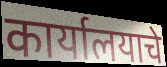
कार्यालयाचे